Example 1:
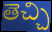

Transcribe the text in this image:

తెచ్చి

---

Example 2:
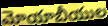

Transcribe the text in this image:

మోయాబీయుల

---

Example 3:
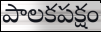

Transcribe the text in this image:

పాలకపక్షం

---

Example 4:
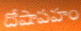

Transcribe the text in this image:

దోషాపహం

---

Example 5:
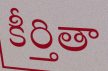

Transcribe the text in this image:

కీర్తితా